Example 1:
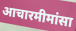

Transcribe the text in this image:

आचारमीमांसा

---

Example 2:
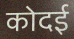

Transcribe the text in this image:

कोदई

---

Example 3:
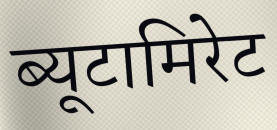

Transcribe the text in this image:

ब्यूटामिरेट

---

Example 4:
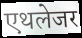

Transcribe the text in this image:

एथलेजर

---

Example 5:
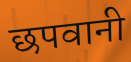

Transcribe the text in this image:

छपवानी